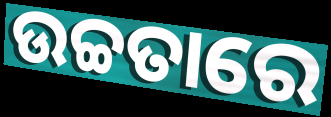
ଉଚ୍ଚତାରେ